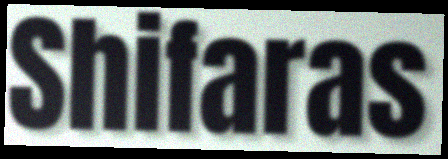
Shifaras